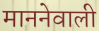
माननेवाली